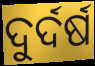
ଦୁର୍ଦର୍ଷ